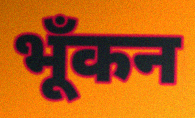
भूँकन